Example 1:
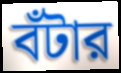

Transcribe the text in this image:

বঁটার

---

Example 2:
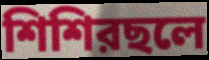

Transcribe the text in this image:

শিশিরছলে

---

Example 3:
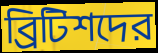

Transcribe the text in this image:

ব্রিটিশদের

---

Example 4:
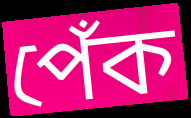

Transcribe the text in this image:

পেঁক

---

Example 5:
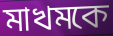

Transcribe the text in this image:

মাখমকে